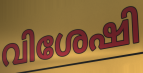
വിശേഷി